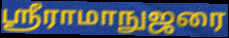
ஸ்ரீராமாநுஜரை